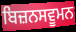
ਬਿਜ਼ਨਸਵੂਮਨ